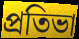
প্ৰতিভা